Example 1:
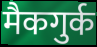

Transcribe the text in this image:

मैकगुर्क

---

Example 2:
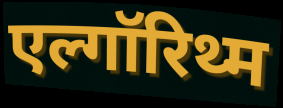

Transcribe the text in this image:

एल्गॉरिथ्म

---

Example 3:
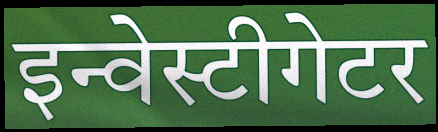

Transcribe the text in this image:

इन्वेस्टीगेटर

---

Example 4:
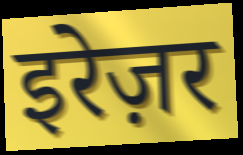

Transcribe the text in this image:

इरेज़र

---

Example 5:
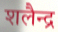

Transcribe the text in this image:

शलैन्द्र